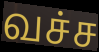
வச்ச